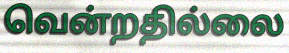
வென்றதில்லை